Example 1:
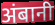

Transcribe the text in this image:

अंबानी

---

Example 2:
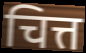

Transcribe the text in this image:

चित्त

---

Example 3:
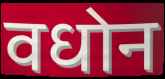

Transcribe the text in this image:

वधोन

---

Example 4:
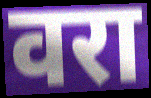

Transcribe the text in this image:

वरा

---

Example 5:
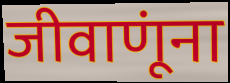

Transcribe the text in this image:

जीवाणूंना